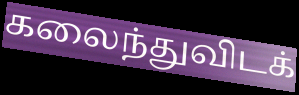
கலைந்துவிடக்